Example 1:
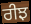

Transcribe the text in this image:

ਰੀਝ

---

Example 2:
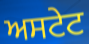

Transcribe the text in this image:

ਅਸਟੇਟ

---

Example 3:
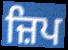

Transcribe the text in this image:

ਜ਼ਿਪ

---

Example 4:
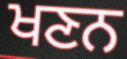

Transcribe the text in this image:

ਖਣਨ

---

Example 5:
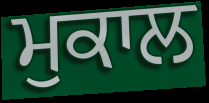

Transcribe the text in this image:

ਮੁਕਾਲ